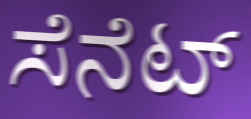
ಸೆನೆಟ್